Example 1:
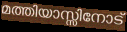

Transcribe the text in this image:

മത്തിയാസ്സിനോട്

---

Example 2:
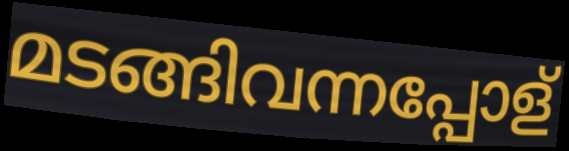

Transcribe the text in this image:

മടങ്ങിവന്നപ്പോള്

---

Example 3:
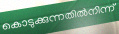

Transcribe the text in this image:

കൊടുക്കുന്നതിൽനിന്ന്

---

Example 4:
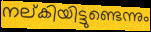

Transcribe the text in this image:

നല്കിയിട്ടുണ്ടെന്നും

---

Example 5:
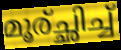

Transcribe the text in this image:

മൂര്ച്ഛിച്ച്